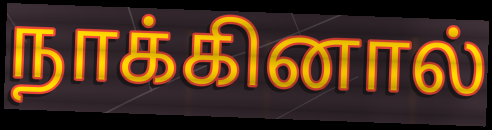
நாக்கினால்